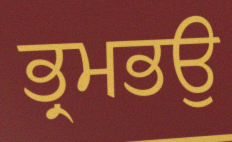
ਭ੍ਰਮਭਉ